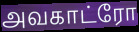
அவகாட்ரோ